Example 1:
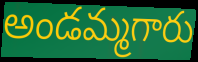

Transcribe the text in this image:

అండమ్మగారు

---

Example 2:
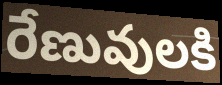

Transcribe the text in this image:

రేణువులకి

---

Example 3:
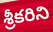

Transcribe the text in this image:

శ్రీకరిని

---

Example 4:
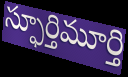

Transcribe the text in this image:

స్ఫూర్తిమూర్తి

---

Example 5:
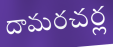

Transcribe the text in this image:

దామరచర్ల